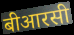
बीआरसी